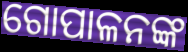
ଗୋପାଳନଙ୍କ